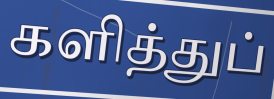
களித்துப்